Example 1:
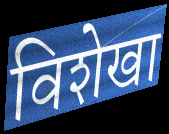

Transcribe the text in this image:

विशेखा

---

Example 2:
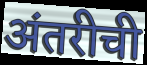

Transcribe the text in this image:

अंतरीची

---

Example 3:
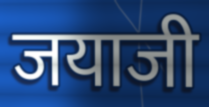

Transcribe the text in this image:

जयाजी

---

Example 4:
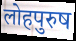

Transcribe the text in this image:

लोहपुरुष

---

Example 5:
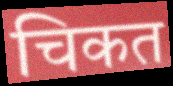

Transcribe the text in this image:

चिकत